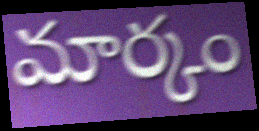
మార్కం